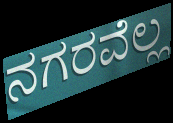
ನಗರವೆಲ್ಲ